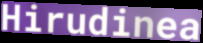
Hirudinea